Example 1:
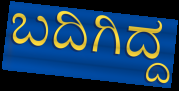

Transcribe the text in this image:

ಬದಿಗಿದ್ದ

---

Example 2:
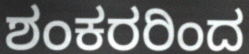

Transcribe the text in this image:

ಶಂಕರರಿಂದ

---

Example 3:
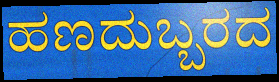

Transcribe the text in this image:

ಹಣದುಬ್ಬರದ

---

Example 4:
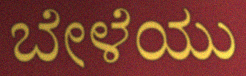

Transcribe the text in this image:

ಬೇಳೆಯು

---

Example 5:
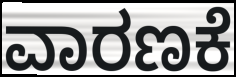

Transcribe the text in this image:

ವಾರಣಕೆ